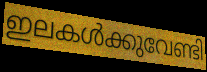
ഇലകൾക്കുവേണ്ടി